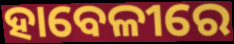
ହାବେଳୀରେ